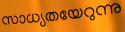
സാധ്യതയേറുന്നു